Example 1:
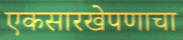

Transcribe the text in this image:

एकसारखेपणाचा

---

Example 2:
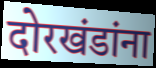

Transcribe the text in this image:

दोरखंडांना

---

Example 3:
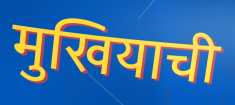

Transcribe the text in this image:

मुखियाची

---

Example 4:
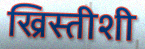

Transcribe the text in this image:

ख्रिस्तीशी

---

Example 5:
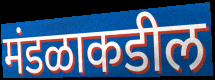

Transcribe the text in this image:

मंडळाकडील